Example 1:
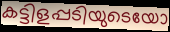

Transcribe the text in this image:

കട്ടിളപ്പടിയുടെയോ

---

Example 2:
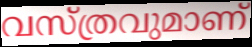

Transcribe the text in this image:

വസ്ത്രവുമാണ്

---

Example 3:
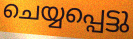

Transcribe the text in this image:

ചെയ്യപ്പെട്ടു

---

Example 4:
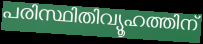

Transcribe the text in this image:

പരിസ്ഥിതിവ്യൂഹത്തിന്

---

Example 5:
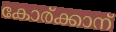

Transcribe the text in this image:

കോര്ക്കാന്